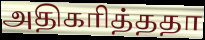
அதிகரித்ததா